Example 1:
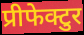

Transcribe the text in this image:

प्रीफेक्टुर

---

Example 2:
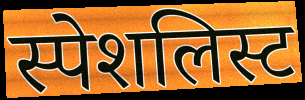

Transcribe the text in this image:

स्पेशलिस्ट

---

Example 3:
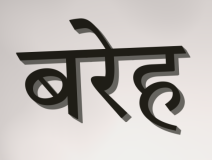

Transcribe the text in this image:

बरेह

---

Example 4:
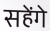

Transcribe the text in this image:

सहेंगे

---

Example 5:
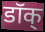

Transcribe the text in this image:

डॉक्